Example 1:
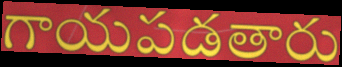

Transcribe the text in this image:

గాయపడతారు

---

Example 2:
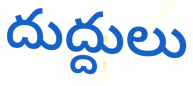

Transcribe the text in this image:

దుద్దులు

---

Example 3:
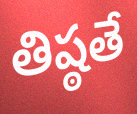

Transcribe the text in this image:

తిష్ఠతే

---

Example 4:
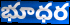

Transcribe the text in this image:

భూధర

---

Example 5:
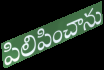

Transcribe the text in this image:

పిలిపించాను